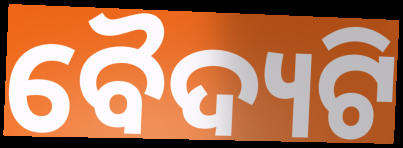
ବୈଦ୍ୟଟି